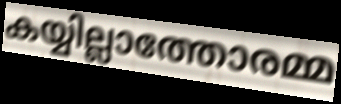
കയ്യില്ലാത്തോരമ്മ